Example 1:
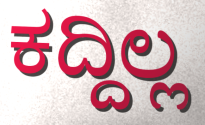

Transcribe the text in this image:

ಕದ್ದಿಲ್ಲ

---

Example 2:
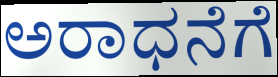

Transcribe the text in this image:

ಅರಾಧನೆಗೆ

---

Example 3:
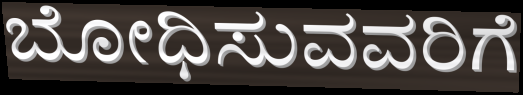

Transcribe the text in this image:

ಬೋಧಿಸುವವರಿಗೆ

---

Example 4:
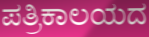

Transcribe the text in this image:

ಪತ್ರಿಕಾಲಯದ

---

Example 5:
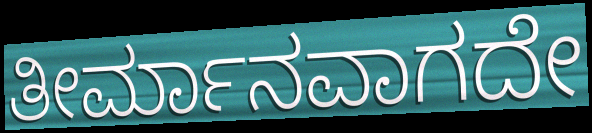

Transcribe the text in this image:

ತೀರ್ಮಾನವಾಗದೇ